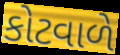
કોટવાળે